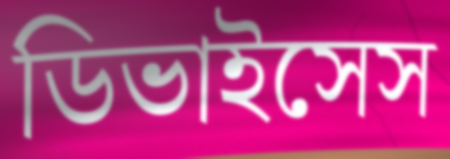
ডিভাইসেস